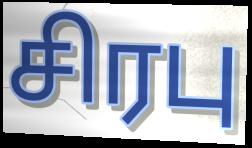
சிரபு